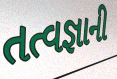
તત્વજ્ઞાની